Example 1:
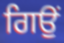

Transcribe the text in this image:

ਗਿਉਂ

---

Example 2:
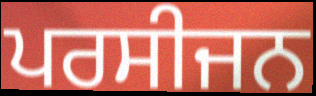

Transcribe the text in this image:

ਪਰਸੀਜਨ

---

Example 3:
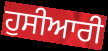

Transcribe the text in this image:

ਹੁਸੀਆਰੀ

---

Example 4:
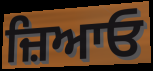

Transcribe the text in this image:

ਜ਼ਿਆਓ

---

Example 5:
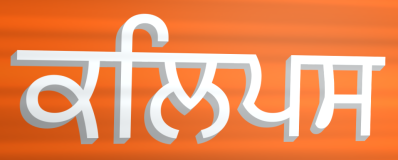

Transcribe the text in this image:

ਕਲਿਪਸ